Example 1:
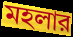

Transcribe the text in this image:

মহলার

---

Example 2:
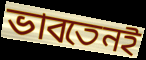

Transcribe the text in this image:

ভাবতেনই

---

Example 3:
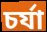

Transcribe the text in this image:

চর্যা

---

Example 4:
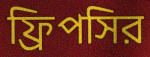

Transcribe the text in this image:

ফ্রিপসির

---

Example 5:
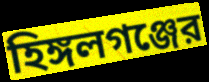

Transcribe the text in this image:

হিঙ্গলগঞ্জের